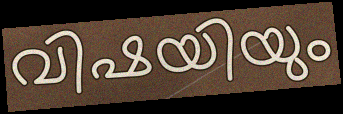
വിഷയിയും